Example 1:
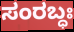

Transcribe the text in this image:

ಸಂರಬ್ಧಃ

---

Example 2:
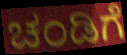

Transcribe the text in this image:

ಚಂಡಿಗೆ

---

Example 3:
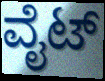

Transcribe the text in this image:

ವೈಟ್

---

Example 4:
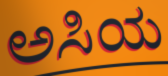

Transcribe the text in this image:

ಅಸಿಯ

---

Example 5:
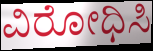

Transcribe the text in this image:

ವಿರೋಧಿಸಿ